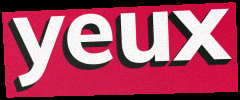
yeux